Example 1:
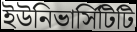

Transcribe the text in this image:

ইউনিভার্সিটিটি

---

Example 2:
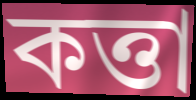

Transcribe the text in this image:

কত্তা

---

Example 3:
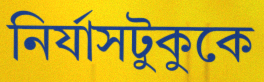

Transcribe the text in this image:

নির্যাসটুকুকে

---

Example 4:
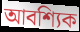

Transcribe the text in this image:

আবশ্যিক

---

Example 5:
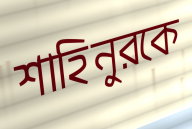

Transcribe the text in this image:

শাহিনুরকে